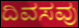
ದಿವಸವು